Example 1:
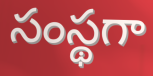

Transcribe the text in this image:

సంస్థగా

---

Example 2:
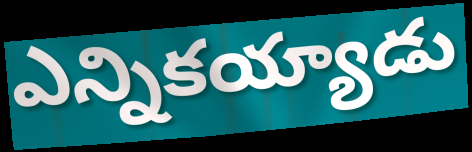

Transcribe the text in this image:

ఎన్నికయ్యాడు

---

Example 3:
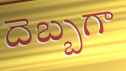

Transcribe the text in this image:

దెబ్బగా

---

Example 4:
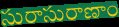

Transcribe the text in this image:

సురాసురాణాం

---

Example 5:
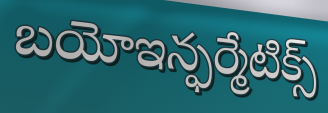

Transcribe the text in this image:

బయోఇన్ఫర్మేటిక్స్